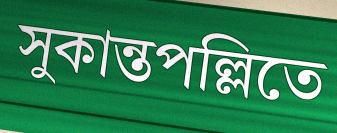
সুকান্তপল্লিতে